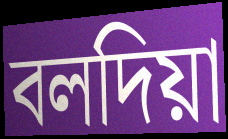
বলদিয়া